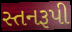
સ્તનરૂપી